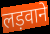
लड़वाने